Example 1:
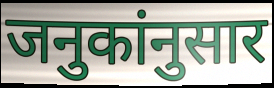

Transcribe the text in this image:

जनुकांनुसार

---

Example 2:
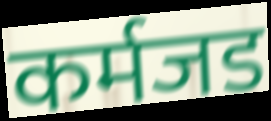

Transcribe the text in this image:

कर्मजड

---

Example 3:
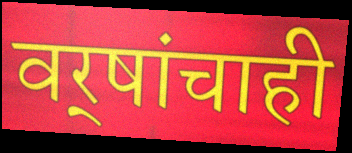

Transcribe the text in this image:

वर्षांचाही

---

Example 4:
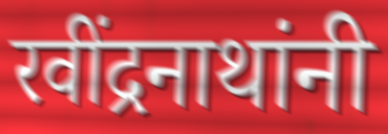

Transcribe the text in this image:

रवींद्रनाथांनी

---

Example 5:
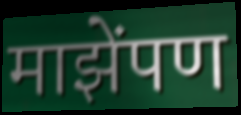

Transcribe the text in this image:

माझेंपण